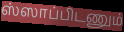
ஸ்ஸாப்பிடணும்